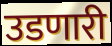
उडणारी